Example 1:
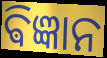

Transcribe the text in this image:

ଵିଜ୍ଞାନ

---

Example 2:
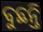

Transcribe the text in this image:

ବୁଛନ୍ତି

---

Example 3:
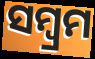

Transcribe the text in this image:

ସମ୍ବ୍ରମ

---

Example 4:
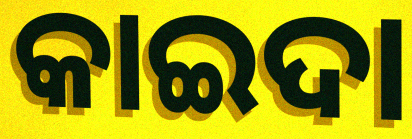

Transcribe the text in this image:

କାଇଦା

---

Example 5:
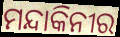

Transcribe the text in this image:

ମନ୍ଦାକିନୀର